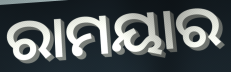
ରାମୟାର